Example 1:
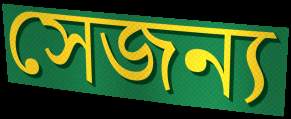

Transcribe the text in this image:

সেজন্য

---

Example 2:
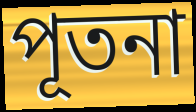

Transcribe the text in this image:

পূতনা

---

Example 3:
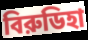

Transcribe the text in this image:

বিরুডিহা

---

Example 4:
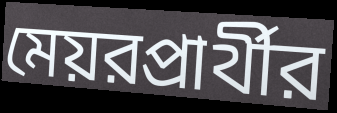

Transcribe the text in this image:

মেয়রপ্রার্থীর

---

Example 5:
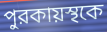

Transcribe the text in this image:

পুরকায়স্থকে